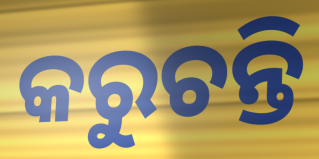
କରୁଚନ୍ତି